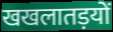
खखलातड़यों